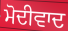
ਮੋਦੀਵਾਦ